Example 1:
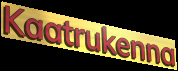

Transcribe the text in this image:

Kaatrukenna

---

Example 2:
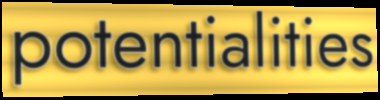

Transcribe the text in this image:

potentialities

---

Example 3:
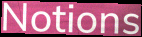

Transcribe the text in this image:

Notions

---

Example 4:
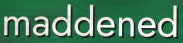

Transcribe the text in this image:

maddened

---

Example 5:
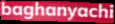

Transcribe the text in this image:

baghanyachi